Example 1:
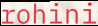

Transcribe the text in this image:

rohini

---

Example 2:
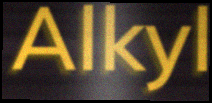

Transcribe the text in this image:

Alkyl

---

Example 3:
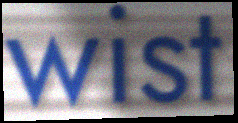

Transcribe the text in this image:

wist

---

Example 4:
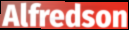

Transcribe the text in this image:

Alfredson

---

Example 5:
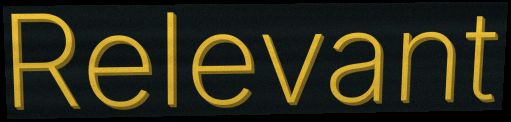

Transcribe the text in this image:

Relevant